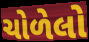
ચોળેલો